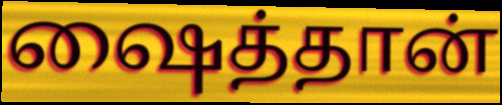
ஷைத்தான்